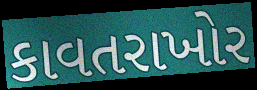
કાવતરાખોર